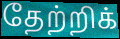
தேற்றிக்